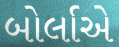
બોર્લાએ